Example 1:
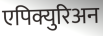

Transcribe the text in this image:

एपिक्युरिअन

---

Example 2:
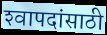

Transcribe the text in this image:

श्वापदांसाठी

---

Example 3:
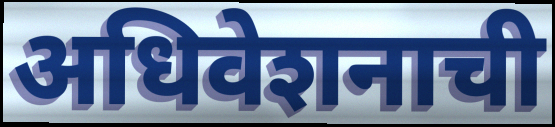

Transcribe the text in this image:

अधिवेशनाची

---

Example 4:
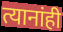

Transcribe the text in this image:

त्यानांही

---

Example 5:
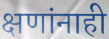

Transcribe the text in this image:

क्षणांनाही